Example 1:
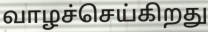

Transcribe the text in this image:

வாழச்செய்கிறது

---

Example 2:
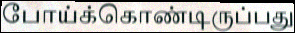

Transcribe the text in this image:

போய்க்கொண்டிருப்பது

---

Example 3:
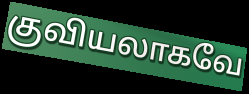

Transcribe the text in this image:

குவியலாகவே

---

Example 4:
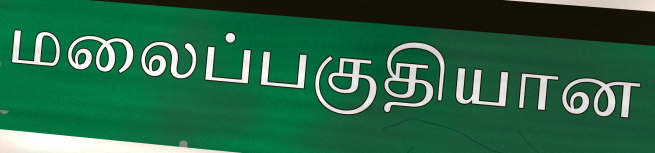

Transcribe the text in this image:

மலைப்பகுதியான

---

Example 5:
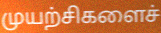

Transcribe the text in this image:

முயற்சிகளைச்